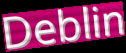
Deblin